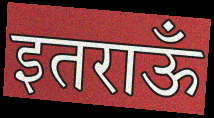
इतराऊँ